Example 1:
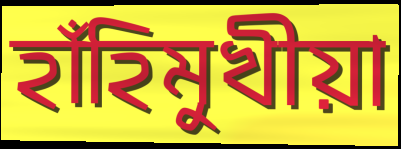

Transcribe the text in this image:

হাঁহিমুখীয়া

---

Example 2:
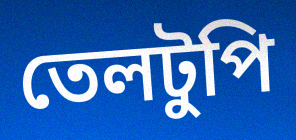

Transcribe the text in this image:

তেলটুপি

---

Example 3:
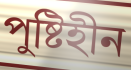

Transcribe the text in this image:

পুষ্টিহীন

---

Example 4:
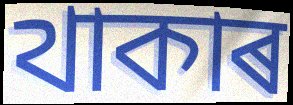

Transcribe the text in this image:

থাকাৰ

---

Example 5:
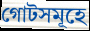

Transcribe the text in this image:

গোটসমূহে